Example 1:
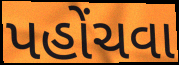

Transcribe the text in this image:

પહોંચવા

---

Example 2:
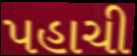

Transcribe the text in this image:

પહાચી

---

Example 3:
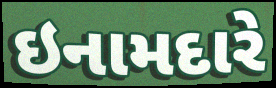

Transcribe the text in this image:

ઇનામદારે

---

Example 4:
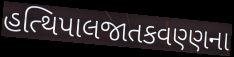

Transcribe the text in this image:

હત્થિપાલજાતકવણ્ણના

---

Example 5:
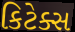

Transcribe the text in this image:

કિટેક્સ